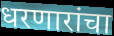
धरणारांचा